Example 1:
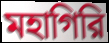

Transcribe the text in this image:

মহাগিরি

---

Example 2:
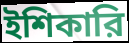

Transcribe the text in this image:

ইশিকারি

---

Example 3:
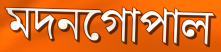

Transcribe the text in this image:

মদনগোপাল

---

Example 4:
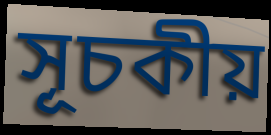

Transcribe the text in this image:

সূচকীয়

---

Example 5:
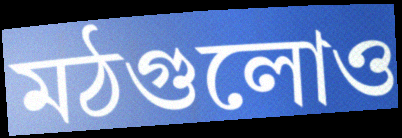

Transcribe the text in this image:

মঠগুলোও